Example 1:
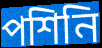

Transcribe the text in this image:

পশিনি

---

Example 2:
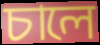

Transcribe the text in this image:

চালে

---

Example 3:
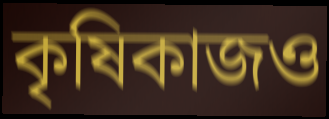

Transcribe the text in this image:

কৃষিকাজও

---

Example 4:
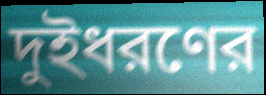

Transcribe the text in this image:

দুইধরণের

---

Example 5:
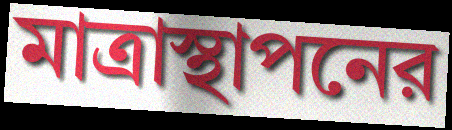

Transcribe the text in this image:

মাত্রাস্থাপনের